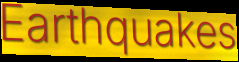
Earthquakes